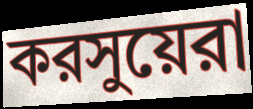
করসুয়েরা